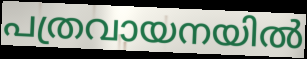
പത്രവായനയിൽ